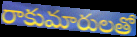
రాకుమారులతో